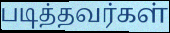
படித்தவர்கள்